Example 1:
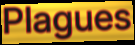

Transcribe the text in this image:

Plagues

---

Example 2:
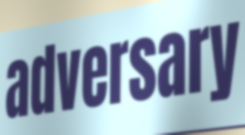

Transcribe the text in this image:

adversary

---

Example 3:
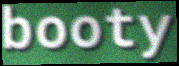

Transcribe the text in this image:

booty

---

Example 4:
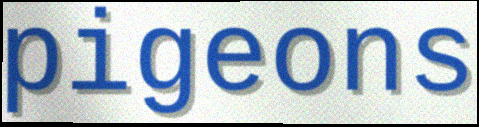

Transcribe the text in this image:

pigeons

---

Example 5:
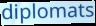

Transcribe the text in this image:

diplomats